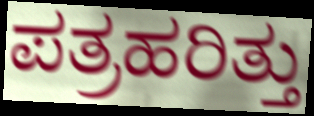
ಪತ್ರಹರಿತ್ತು